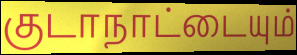
குடாநாட்டையும்